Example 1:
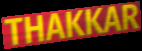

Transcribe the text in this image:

THAKKAR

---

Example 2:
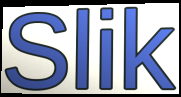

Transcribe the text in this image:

Slik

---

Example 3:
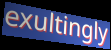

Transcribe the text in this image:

exultingly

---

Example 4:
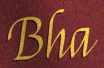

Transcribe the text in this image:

Bha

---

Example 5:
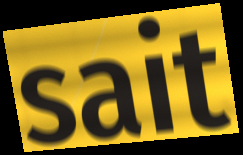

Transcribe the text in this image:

sait